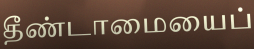
தீண்டாமையைப்